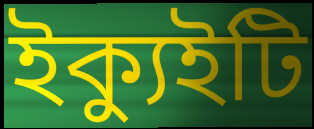
ইক্যুইটি